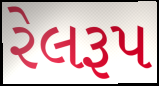
રેલરૂપ